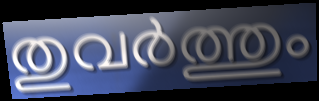
തുവർത്തും